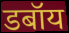
डबॉय